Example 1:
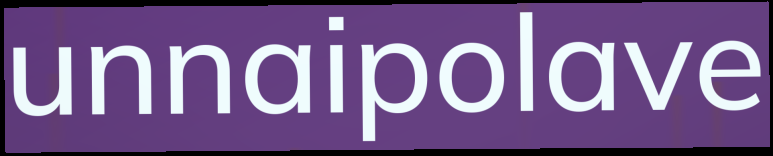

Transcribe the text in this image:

unnaipolave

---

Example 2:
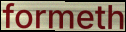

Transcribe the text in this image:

formeth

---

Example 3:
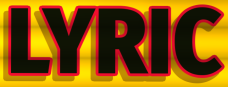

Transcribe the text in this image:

LYRIC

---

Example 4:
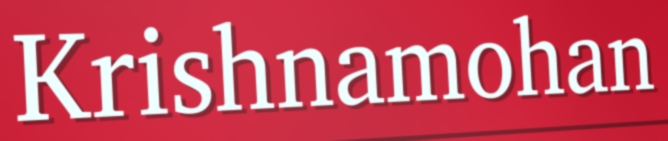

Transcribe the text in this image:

Krishnamohan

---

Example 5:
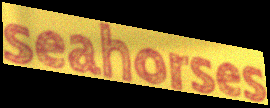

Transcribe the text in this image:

seahorses